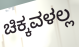
ಚಿಕ್ಕವಳಲ್ಲ